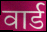
वार्ड